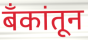
बँकांतून